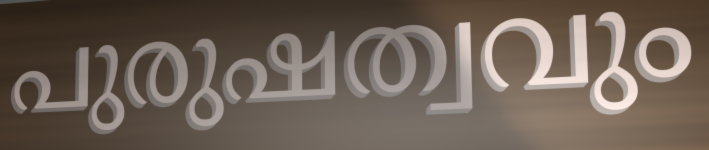
പുരുഷത്വവും